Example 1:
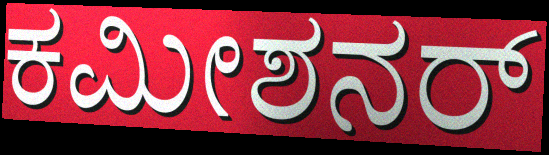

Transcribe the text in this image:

ಕಮೀಶನರ್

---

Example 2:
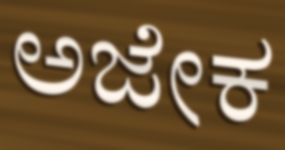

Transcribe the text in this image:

ಅಜೇಕ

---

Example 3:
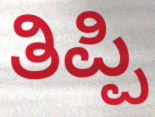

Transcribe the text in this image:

ತಿಪ್ಪಿ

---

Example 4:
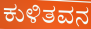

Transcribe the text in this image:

ಕುಳಿತವನ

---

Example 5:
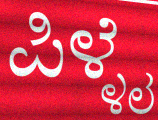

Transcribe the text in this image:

ಪಿಳ್ಳೈ